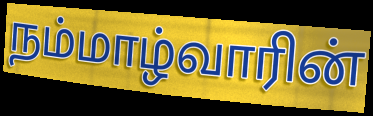
நம்மாழ்வாரின்